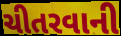
ચીતરવાની